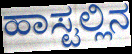
ಹಾಸ್ಟಲ್ಲಿನ